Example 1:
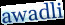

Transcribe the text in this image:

awadli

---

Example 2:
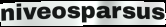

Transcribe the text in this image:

niveosparsus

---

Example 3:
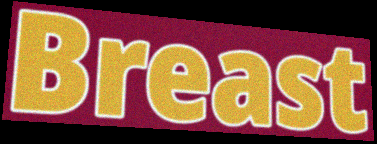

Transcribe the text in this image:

Breast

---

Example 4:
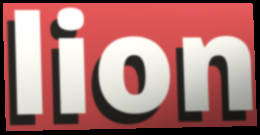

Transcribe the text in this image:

lion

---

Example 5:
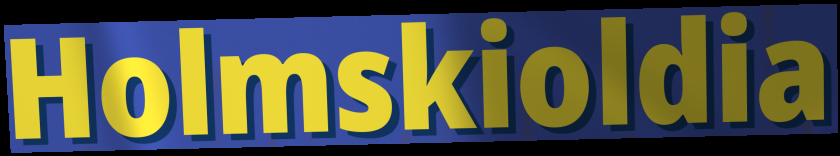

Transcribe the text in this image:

Holmskioldia